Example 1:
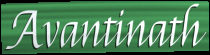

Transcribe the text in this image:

Avantinath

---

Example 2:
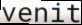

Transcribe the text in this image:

venit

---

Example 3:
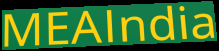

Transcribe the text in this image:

MEAIndia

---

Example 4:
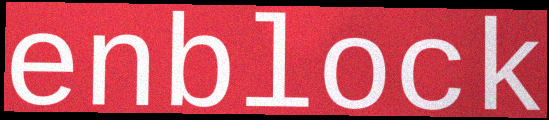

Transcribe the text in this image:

enblock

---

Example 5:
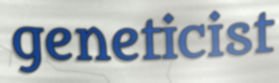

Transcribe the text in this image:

geneticist